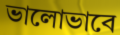
ভালোভাবে